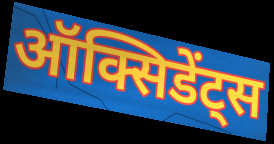
ऑक्सिडेंट्स